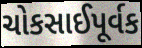
ચોકસાઈપૂર્વક